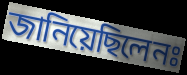
জানিয়েছিলেনঃ